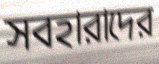
সবহারাদের